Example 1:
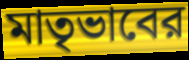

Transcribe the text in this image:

মাতৃভাবের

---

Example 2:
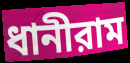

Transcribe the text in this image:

ধানীরাম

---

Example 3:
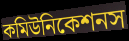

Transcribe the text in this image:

কমিউনিকেশনস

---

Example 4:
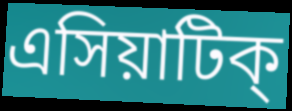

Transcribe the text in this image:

এসিয়াটিক্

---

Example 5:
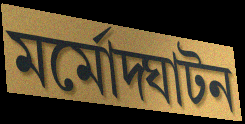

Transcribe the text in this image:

মর্মোদ্ঘাটন